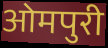
ओमपुरी